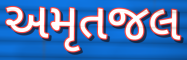
અમૃતજલ